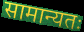
सामान्यतः